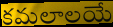
కమలాలయే